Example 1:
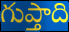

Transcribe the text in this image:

గుప్తాది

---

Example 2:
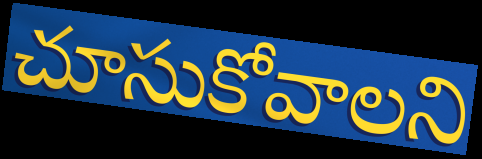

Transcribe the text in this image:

చూసుకోవాలని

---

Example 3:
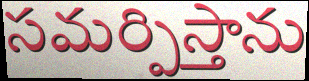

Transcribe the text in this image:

సమర్పిస్తాను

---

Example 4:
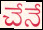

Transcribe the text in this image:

చేనే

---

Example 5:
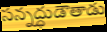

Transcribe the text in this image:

సన్నద్ధుడౌతాడు